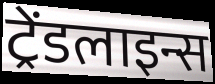
ट्रेंडलाइन्स